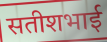
सतीशभाई